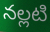
నల్లటి